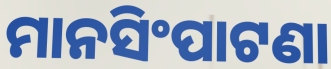
ମାନସିଂପାଟଣା